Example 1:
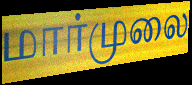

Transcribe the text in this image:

மார்முலை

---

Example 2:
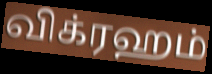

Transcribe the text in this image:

விக்ரஹம்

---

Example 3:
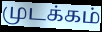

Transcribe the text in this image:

முடக்கம்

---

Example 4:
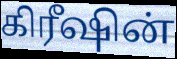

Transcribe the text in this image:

கிரீஷின்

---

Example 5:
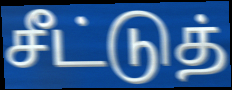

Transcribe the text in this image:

சீட்டுத்